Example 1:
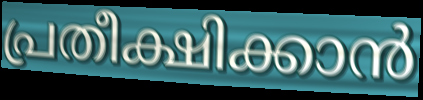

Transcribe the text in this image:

പ്രതീക്ഷിക്കാൻ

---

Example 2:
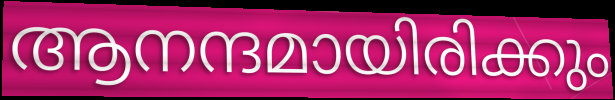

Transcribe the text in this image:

ആനന്ദമായിരിക്കും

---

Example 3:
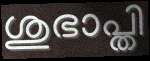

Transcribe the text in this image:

ശുഭാപ്തി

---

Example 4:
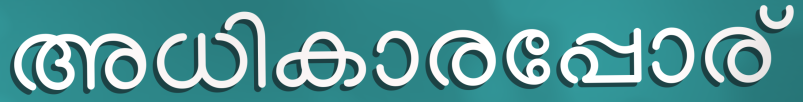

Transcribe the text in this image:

അധികാരപ്പോര്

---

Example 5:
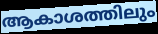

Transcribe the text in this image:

ആകാശത്തിലും